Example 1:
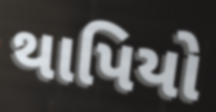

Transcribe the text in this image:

થાપિયો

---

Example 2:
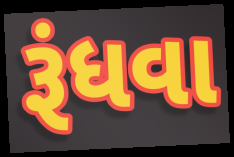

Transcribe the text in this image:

રૂંધવા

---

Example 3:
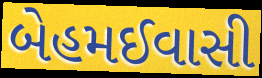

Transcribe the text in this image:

બેહમઈવાસી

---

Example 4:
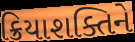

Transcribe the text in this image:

ક્રિયાશક્તિને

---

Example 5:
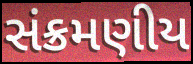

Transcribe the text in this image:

સંક્રમણીય